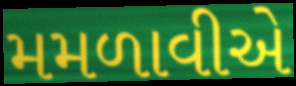
મમળાવીએ